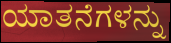
ಯಾತನೆಗಳನ್ನು